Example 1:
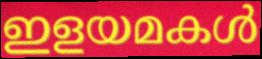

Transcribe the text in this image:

ഇളയമകൾ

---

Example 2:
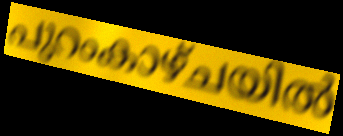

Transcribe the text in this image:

പുറംകാഴ്ചയിൽ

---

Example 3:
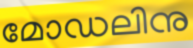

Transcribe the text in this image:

മോഡലിനു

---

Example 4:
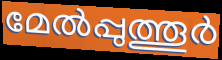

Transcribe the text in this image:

മേൽപ്പുത്തൂർ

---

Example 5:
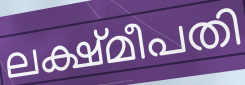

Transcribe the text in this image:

ലക്ഷ്മീപതി